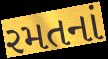
રમતનાં